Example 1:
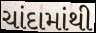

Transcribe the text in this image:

ચાંદામાંથી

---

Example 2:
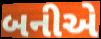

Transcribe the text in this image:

બનીએ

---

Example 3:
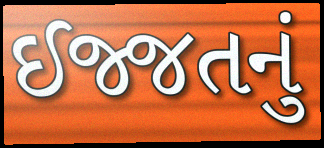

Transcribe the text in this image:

ઈજ્જતનું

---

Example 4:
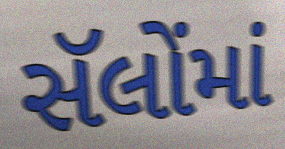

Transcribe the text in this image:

સૅલોંમાં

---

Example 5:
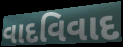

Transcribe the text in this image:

વાદવિવાદ